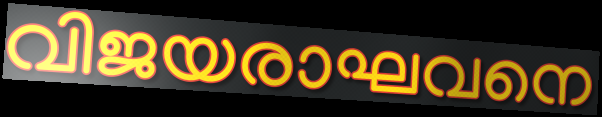
വിജയരാഘവനെ